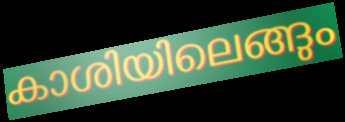
കാശിയിലെങ്ങും